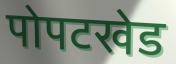
पोपटखेड